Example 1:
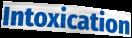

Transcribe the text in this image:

Intoxication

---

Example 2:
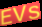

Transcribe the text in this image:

EVs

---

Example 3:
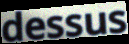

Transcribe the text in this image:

dessus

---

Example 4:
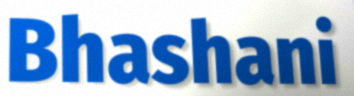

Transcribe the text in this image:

Bhashani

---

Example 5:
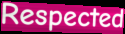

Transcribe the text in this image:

Respected